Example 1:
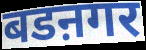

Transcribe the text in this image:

बडऩगर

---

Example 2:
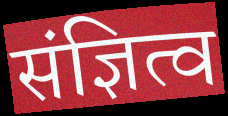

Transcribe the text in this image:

संज्ञित्व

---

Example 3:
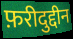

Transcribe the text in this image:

फ़रीदुद्दीन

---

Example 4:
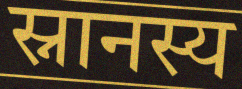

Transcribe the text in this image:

स्नानस्य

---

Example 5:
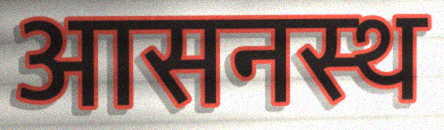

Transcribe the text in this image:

आसनस्थ